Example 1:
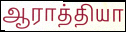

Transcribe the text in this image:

ஆராத்தியா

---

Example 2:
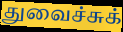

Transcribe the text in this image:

துவைச்சுக்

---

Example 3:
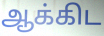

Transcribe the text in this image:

ஆக்கிட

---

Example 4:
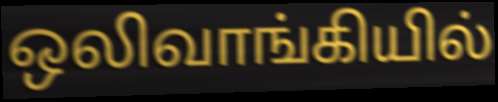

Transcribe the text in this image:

ஒலிவாங்கியில்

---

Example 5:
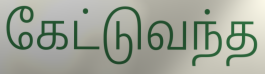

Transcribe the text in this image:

கேட்டுவந்த